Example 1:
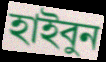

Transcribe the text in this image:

হাইবুন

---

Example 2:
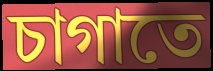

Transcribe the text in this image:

চাগাতে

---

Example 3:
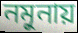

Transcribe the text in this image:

নমুনায়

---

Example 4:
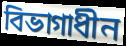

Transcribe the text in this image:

বিভাগাধীন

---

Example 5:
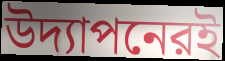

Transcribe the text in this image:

উদ্যাপনেরই